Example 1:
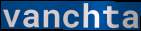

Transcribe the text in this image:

vanchta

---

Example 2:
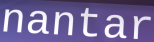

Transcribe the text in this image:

nantar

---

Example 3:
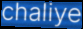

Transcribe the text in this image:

chaliye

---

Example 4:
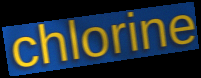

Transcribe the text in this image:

chlorine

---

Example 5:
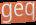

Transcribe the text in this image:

geq